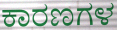
ಕಾರಣಗಳ